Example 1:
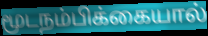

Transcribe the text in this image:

மூடநம்பிக்கையால்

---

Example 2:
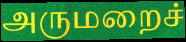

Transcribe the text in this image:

அருமறைச்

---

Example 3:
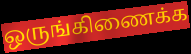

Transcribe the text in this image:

ஒருங்கிணைக்க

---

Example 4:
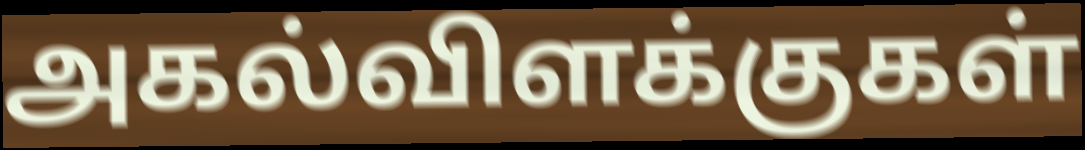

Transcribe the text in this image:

அகல்விளக்குகள்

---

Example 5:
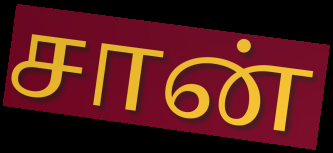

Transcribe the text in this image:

சான்